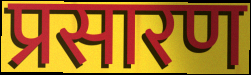
प्रसारण